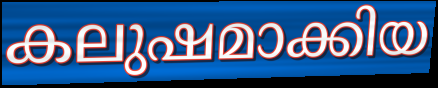
കലുഷമാക്കിയ